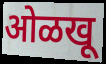
ओळखू